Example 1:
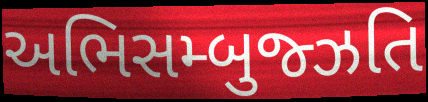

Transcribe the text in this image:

અભિસમ્બુજ્ઝતિ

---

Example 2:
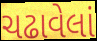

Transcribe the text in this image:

ચઢાવેલાં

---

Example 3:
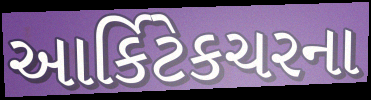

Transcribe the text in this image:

આર્કિટેકચરના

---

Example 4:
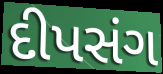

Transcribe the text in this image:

દીપસંગ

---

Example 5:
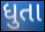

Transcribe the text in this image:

ધુતા